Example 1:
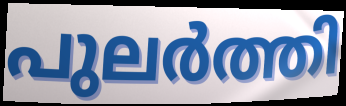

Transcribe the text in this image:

പുലർത്തി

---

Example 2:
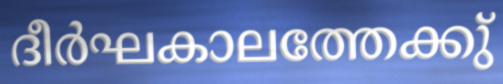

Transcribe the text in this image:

ദീർഘകാലത്തേക്കു്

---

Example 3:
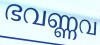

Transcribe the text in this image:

ഭവണ്ണവ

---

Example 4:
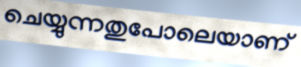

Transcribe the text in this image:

ചെയ്യുന്നതുപോലെയാണ്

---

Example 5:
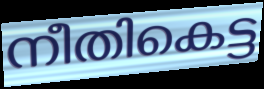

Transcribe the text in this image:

നീതികെട്ട